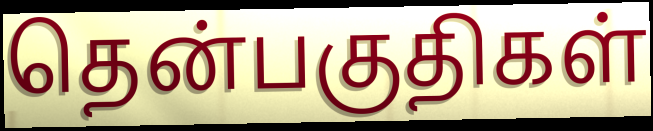
தென்பகுதிகள்